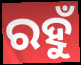
ରହୁଁ